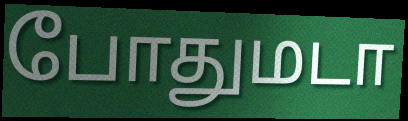
போதுமடா